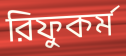
রিফুকর্ম